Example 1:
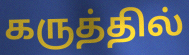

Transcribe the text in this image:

கருத்தில்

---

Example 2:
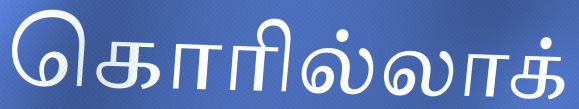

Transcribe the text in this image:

கொரில்லாக்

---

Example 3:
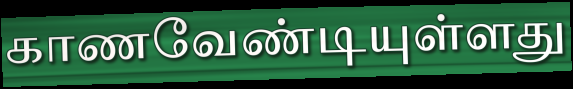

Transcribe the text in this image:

காணவேண்டியுள்ளது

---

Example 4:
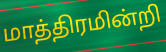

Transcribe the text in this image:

மாத்திரமின்றி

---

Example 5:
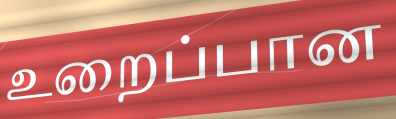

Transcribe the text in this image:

உறைப்பான